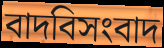
বাদবিসংবাদ